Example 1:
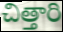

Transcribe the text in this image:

చిత్తారి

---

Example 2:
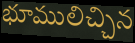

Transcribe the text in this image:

భూములిచ్చిన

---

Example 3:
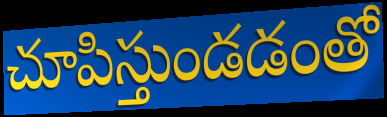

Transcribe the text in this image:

చూపిస్తుండడంతో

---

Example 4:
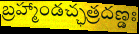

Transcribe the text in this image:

బ్రహ్మాండచ్ఛత్రదణ్డః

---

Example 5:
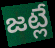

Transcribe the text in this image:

జట్లే